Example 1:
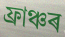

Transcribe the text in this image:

ফ্ৰাঞ্চৰ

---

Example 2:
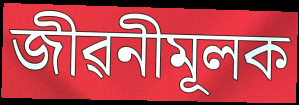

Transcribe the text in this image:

জীৱনীমূলক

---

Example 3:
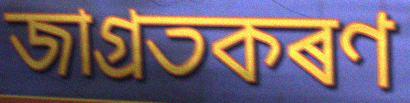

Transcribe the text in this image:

জাগ্ৰতকৰণ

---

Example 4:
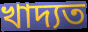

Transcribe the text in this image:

খাদ্যত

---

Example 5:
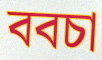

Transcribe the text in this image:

ববচা